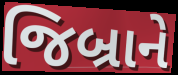
જિબ્રાને